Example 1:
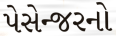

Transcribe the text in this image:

પેસેન્જરનો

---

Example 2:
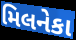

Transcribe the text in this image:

મિલનેકા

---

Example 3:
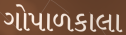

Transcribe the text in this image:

ગોપાળકાલા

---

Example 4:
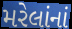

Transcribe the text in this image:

મરેલાંનાં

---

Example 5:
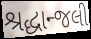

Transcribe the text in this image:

શ્રદ્ધાન્જલી